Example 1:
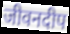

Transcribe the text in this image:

जीवनदीप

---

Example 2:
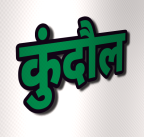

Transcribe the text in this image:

कुंदौल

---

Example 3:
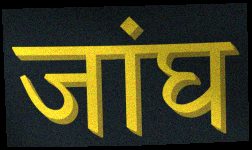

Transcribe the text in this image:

जांघ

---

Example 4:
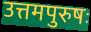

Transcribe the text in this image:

उत्तमपुरुषः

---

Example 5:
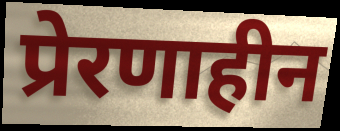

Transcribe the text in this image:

प्रेरणाहीन